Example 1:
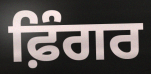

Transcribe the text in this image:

ਫ਼ਿੰਗਰ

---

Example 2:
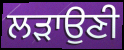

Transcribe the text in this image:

ਲੜਾਉਣੀ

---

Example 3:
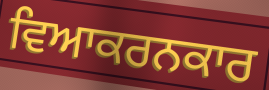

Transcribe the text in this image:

ਵਿਆਕਰਨਕਾਰ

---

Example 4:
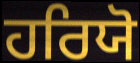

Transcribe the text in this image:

ਹਰਿਯੋ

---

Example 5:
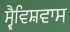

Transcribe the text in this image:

ਸ੍ਵੈਵਿਸ਼ਵਾਸ